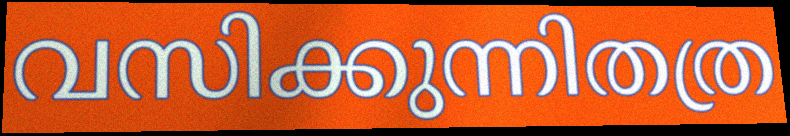
വസിക്കുന്നിതത്ര